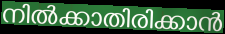
നിൽക്കാതിരിക്കാൻ